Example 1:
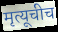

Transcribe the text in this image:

मृत्यूचीच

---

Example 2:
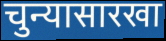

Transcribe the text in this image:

चुन्यासारखा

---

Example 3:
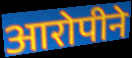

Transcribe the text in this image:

आरोपीने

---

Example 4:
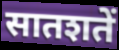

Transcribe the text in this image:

सातशतें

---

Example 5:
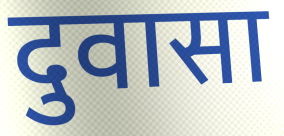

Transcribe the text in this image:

दुवासा